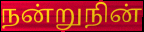
நன்றுநின்